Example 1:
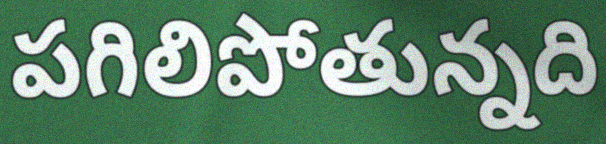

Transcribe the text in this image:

పగిలిపోతున్నది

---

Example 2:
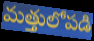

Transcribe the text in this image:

మత్తులోపడి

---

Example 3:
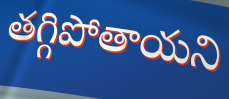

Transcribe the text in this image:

తగ్గిపోతాయని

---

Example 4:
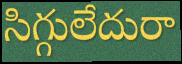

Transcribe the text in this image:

సిగ్గులేదురా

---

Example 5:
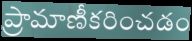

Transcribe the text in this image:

ప్రామాణీకరించడం